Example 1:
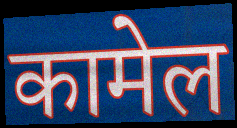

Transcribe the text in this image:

कामेल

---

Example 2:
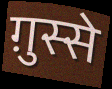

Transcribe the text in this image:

ग़ुस्से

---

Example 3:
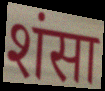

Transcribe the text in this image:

शंसा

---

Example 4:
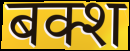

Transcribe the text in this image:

बक्श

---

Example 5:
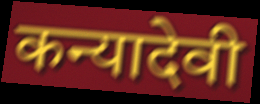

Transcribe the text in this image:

कन्यादेवी